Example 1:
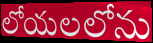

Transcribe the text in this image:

లోయలలోను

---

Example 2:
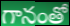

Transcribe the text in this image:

గానంతో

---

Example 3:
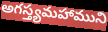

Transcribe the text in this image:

అగస్త్యమహాముని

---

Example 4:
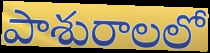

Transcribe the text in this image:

పాశురాలలో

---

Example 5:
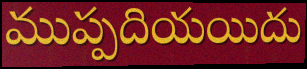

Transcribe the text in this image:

ముప్పదియయిదు